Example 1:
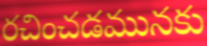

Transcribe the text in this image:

రచించడమునకు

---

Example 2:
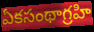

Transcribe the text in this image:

ఏకసంథాగ్రహి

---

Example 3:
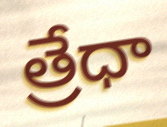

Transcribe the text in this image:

త్రేధా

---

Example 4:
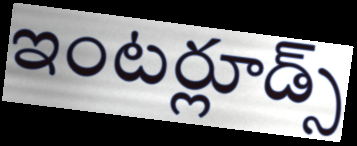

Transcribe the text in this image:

ఇంటర్లూడ్స్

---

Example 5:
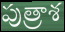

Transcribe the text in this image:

పుత్రాశ